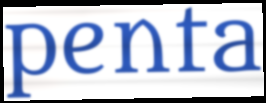
penta